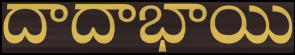
దాదాభాయి